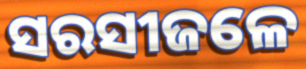
ସରସୀଜଳେ